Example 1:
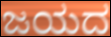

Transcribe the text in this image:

ಜಯದ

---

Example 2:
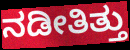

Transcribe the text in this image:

ನಡೀತಿತ್ತು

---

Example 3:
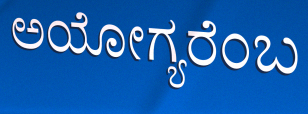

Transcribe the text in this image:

ಅಯೋಗ್ಯರೆಂಬ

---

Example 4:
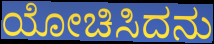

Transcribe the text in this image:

ಯೋಚಿಸಿದನು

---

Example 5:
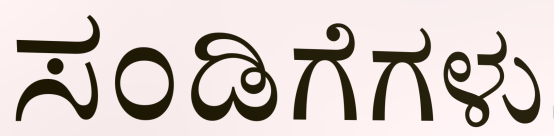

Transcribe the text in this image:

ಸಂಡಿಗೆಗಳು